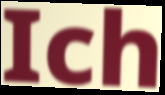
Ich